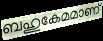
ബഹുകേമമാണ്